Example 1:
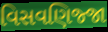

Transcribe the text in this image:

વિસવણિજ્જા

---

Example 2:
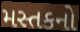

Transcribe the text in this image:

મસ્તકનો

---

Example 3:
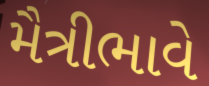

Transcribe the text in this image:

મૈત્રીભાવે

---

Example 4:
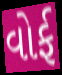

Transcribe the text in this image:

વોર્ફ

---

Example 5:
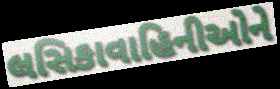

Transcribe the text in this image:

લસિકાવાહિનીઓને